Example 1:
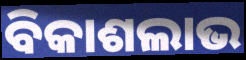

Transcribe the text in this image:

ବିକାଶଲାଭ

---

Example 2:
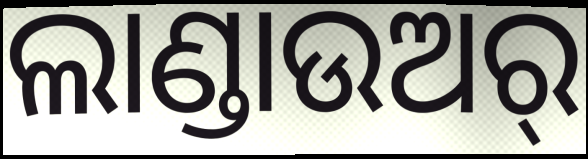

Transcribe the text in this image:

ଲାଣ୍ଡାଉଅର୍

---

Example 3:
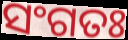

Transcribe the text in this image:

ସଂଗତଃ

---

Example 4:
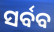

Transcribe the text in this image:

ସର୍ବବ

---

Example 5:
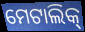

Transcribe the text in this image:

ମେଟାଲିକ୍